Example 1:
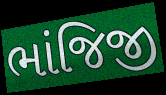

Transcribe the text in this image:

ભાંજિજી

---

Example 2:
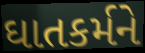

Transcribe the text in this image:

ઘાતકર્મને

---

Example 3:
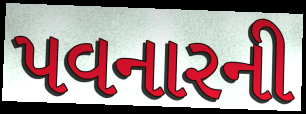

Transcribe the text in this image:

પવનારની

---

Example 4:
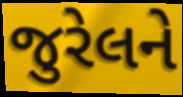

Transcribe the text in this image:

જુરેલને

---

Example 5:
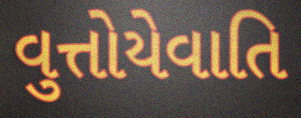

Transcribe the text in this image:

વુત્તોયેવાતિ